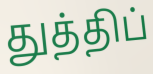
துத்திப்